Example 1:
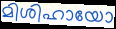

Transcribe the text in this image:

മിശിഹായോ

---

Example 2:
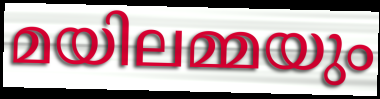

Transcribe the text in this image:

മയിലമ്മയും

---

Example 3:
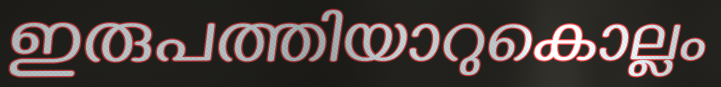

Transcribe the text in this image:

ഇരുപത്തിയാറുകൊല്ലം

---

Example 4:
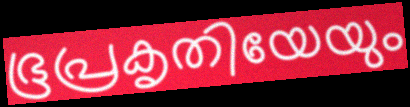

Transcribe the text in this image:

ഭൂപ്രകൃതിയേയും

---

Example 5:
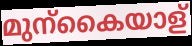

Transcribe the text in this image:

മുന്കൈയാള്